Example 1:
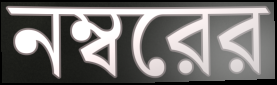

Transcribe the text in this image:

নম্বরের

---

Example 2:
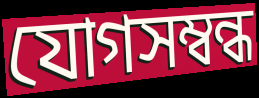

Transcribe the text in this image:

যোগসম্বন্ধ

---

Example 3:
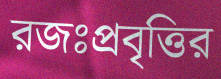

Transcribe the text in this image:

রজঃপ্রবৃত্তির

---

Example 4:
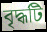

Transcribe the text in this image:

বৃদ্ধটি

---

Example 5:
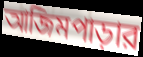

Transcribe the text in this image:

আজিমপাড়ার